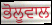
ਭੋਲੂਵਾਲ